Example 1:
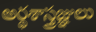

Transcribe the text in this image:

అర్థశాస్త్రజ్ఞులు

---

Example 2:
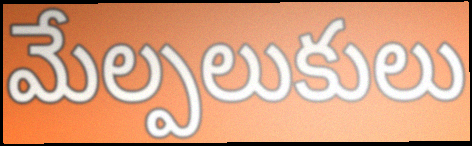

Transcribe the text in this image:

మేల్పలుకులు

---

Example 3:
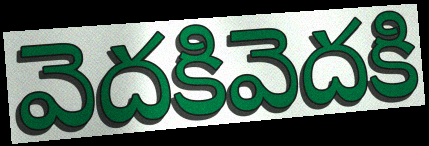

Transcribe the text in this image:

వెదకివెదకి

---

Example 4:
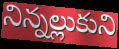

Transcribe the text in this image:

నిన్నల్లుకుని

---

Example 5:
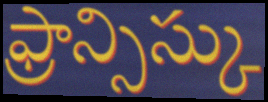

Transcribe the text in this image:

ఫ్రాన్సిస్కు